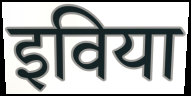
इविया